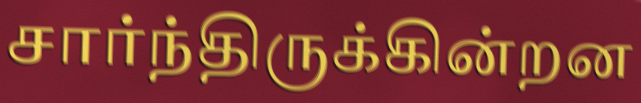
சார்ந்திருக்கின்றன